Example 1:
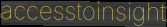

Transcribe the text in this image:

accesstoinsight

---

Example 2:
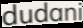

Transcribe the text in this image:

dudani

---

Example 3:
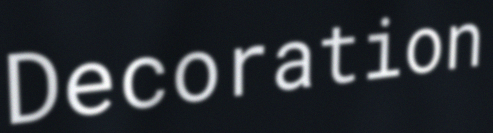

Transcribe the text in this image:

Decoration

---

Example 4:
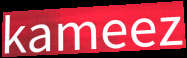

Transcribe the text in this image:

kameez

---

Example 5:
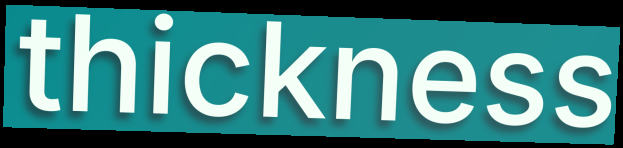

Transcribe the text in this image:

thickness